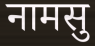
नामसु